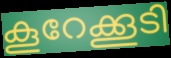
കൂറേക്കൂടി